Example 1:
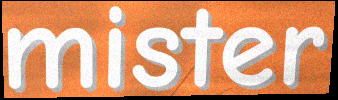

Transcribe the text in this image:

mister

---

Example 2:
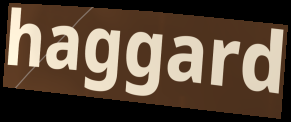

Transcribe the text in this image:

haggard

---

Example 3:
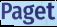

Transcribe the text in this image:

Paget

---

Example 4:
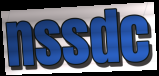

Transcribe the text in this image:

nssdc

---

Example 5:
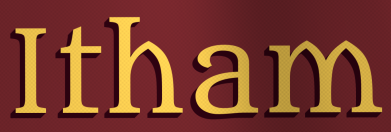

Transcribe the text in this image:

Itham